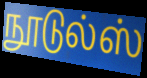
நூடுல்ஸ்